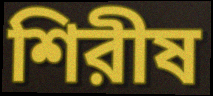
শিরীষ